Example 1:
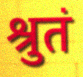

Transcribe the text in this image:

श्रुतं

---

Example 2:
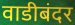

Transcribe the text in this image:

वाडीबंदर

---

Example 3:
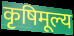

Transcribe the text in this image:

कृषिमूल्य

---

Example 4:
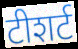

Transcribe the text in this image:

टीशर्ट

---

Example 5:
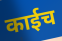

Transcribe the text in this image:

काईच